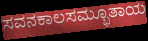
ಸವನಕಾಲಸಮ್ಭೂತಾಯ